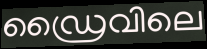
ഡ്രൈവിലെ